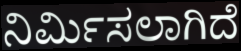
ನಿರ್ಮಿಸಲಾಗಿದೆ